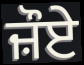
ਜ਼ੌਏ